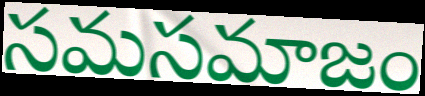
సమసమాజం